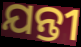
ଯନ୍ତୀ